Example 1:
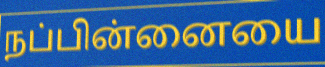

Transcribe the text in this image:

நப்பின்னையை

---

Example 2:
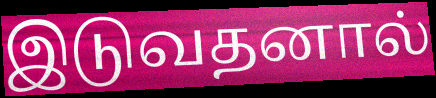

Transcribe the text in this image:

இடுவதனால்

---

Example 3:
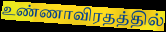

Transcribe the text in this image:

உண்ணாவிரதத்தில்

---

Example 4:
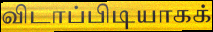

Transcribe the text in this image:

விடாப்பிடியாகக்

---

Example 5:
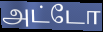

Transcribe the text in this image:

அட்டோ